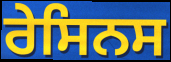
ਰੇਸਿਨਸ